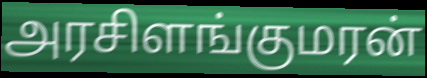
அரசிளங்குமரன்